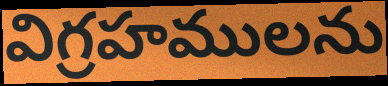
విగ్రహములను